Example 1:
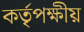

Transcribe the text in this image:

কর্তৃপক্ষীয়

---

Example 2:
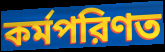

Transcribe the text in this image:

কর্মপরিণত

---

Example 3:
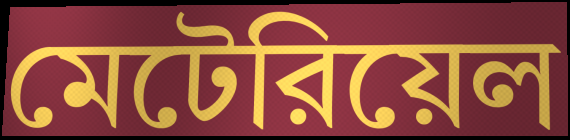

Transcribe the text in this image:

মেটেরিয়েল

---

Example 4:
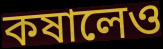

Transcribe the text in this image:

কষালেও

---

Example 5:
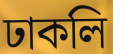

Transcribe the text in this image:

ঢাকলি